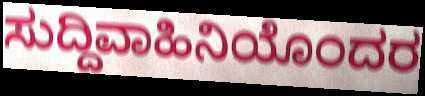
ಸುದ್ದಿವಾಹಿನಿಯೊಂದರ